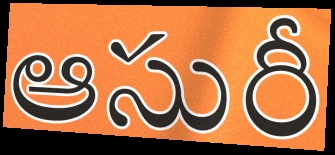
ఆసురీ